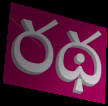
రథ